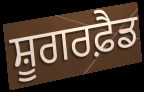
ਸ਼ੂਗਰਫ਼ੈਡ